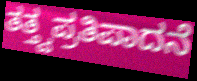
ತತ್ತ್ವಪ್ರತಿಪಾದನೆ